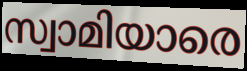
സ്വാമിയാരെ